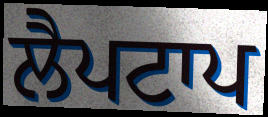
ਲੈਪਟਾਪ